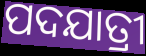
ପଦଯାତ୍ରୀ